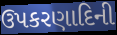
ઉપકરણાદિની